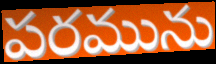
పరమును